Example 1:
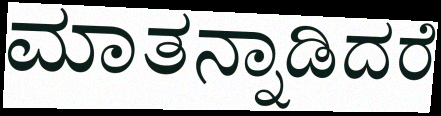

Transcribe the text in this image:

ಮಾತನ್ನಾಡಿದರೆ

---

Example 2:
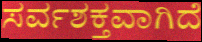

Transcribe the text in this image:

ಸರ್ವಶಕ್ತವಾಗಿದೆ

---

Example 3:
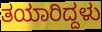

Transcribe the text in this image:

ತಯಾರಿದ್ದಳು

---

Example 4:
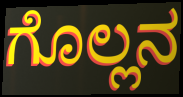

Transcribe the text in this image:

ಗೊಲ್ಲನ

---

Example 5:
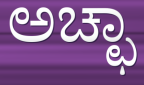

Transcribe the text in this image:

ಅಚ್ಛಾ